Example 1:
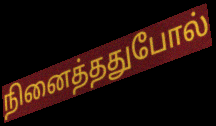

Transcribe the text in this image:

நினைத்ததுபோல்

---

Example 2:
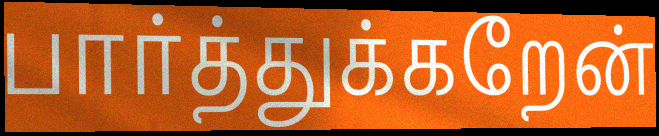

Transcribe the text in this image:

பார்த்துக்கறேன்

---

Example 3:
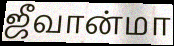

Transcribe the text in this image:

ஜீவான்மா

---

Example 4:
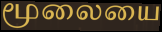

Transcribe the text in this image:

மூலையை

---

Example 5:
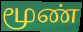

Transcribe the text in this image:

மூண்